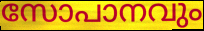
സോപാനവും